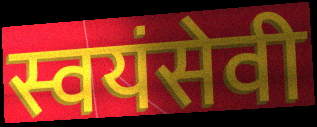
स्वयंसेवी